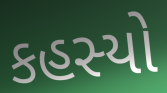
કહસ્યો